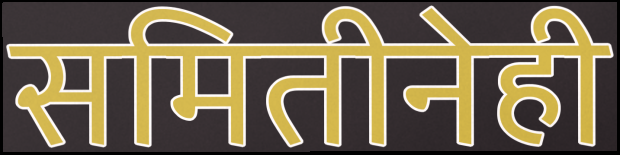
समितीनेही